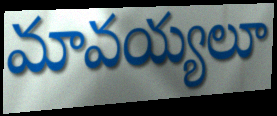
మావయ్యలూ